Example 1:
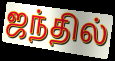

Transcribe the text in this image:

ஜந்தில்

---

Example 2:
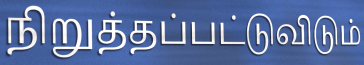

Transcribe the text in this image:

நிறுத்தப்பட்டுவிடும்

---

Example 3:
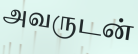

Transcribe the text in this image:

அவருடன்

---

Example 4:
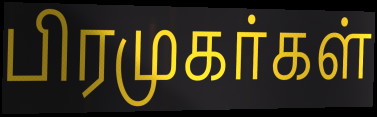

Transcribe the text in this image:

பிரமுகர்கள்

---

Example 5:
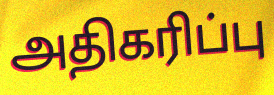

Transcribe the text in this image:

அதிகரிப்பு